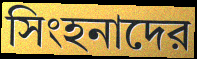
সিংহনাদের